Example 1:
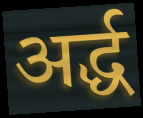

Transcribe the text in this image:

अर्द्ध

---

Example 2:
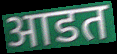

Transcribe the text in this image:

आडत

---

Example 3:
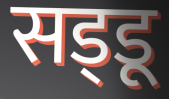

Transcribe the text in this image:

सड्‌डू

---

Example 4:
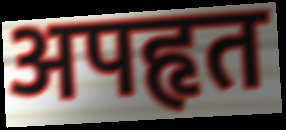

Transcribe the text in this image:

अपहृत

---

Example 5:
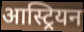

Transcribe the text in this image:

आस्ट्रियन